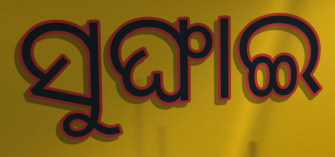
ସୁଙ୍ଘାଇ